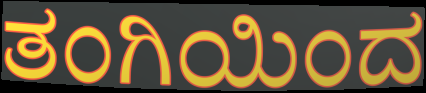
ತಂಗಿಯಿಂದ